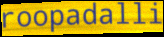
roopadalli